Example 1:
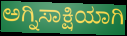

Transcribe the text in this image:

ಅಗ್ನಿಸಾಕ್ಷಿಯಾಗಿ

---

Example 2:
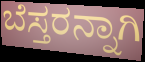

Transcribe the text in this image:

ಬೆಸ್ತರನ್ನಾಗಿ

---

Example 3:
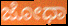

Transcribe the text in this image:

ಜೋಧಾ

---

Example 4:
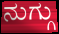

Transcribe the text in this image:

ನುಗ್ಗು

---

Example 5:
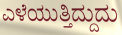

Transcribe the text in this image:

ಎಳೆಯುತ್ತಿದ್ದುದು